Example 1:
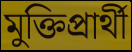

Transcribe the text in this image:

মুক্তিপ্রার্থী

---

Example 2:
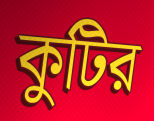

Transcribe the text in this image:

কুটির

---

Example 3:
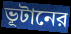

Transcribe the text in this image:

ভূটানের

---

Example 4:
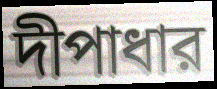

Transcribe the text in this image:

দীপাধার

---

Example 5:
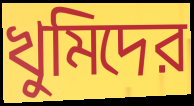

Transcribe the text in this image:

খুমিদের